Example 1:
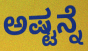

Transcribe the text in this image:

ಅಷ್ಟನ್ನೆ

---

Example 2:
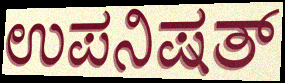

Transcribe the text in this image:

ಉಪನಿಷತ್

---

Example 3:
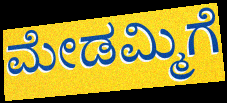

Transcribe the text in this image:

ಮೇಡಮ್ಮಿಗೆ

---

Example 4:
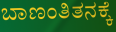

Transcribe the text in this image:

ಬಾಣಂತಿತನಕ್ಕೆ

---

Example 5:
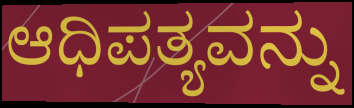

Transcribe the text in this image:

ಆಧಿಪತ್ಯವನ್ನು